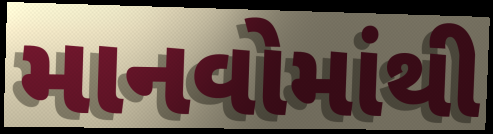
માનવોમાંથી